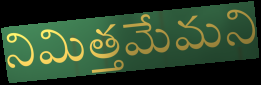
నిమిత్తమేమని